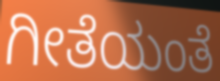
ಗೀತೆಯಂತೆ